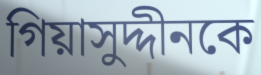
গিয়াসুদ্দীনকে